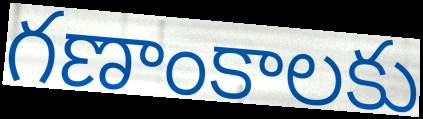
గణాంకాలకు